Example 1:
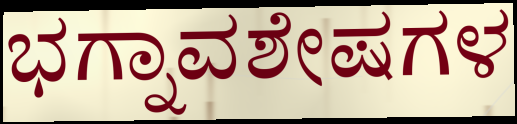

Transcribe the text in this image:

ಭಗ್ನಾವಶೇಷಗಳ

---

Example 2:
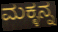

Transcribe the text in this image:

ಮಕ್ಳನ್ನ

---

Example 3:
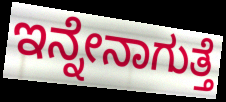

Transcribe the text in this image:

ಇನ್ನೇನಾಗುತ್ತೆ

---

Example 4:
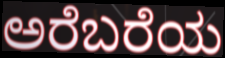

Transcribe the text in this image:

ಅರೆಬರೆಯ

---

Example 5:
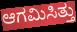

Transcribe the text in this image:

ಆಗಮಿಸಿತ್ತು